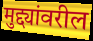
मुद्द्यांवरील